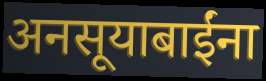
अनसूयाबाईंना